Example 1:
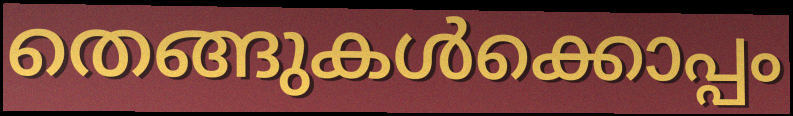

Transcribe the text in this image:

തെങ്ങുകൾക്കൊപ്പം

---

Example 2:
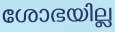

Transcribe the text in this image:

ശോഭയില്ല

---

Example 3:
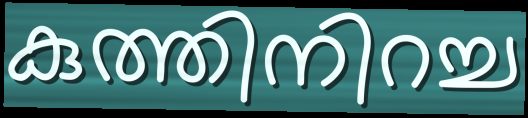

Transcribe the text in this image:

കുത്തിനിറച്ച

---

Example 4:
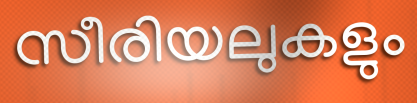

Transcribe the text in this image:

സീരിയലുകളും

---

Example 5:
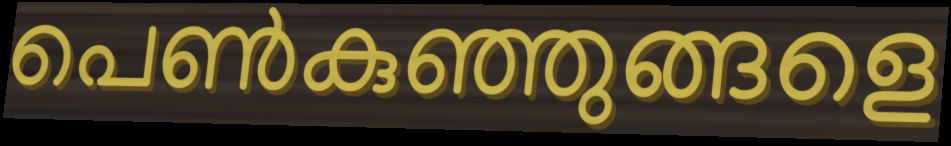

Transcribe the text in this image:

പെൺകുഞ്ഞുങ്ങളെ